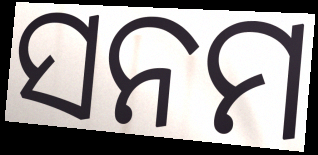
ସନମ